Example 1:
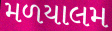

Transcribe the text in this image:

મળયાલમ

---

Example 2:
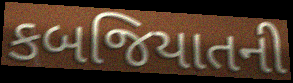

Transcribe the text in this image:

કબજિયાતની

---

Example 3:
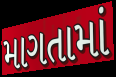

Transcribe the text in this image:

માગતામાં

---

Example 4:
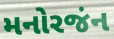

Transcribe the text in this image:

મનોરજંન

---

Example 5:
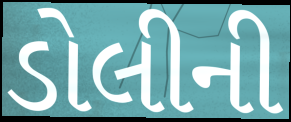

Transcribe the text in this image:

ડોલીની